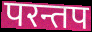
परन्तप